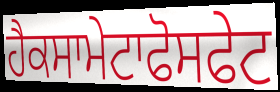
ਹੈਕਸਾਮੇਟਾਫੋਸਫੇਟ